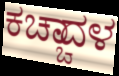
ಕಚ್ಚಾದಳ